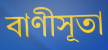
বাণীসূতা